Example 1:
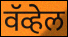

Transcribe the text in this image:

वॅव्हेल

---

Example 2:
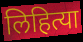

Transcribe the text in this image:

लिहित्या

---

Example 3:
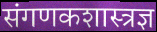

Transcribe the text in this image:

संगणकशास्त्रज्ञ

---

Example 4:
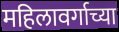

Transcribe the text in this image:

महिलावर्गाच्या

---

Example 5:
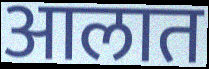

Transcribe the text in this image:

आलात